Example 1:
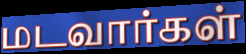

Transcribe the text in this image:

மடவார்கள்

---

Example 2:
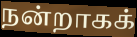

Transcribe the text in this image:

நன்றாகக்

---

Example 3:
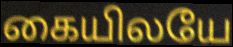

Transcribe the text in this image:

கையிலயே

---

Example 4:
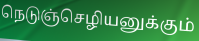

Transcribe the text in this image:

நெடுஞ்செழியனுக்கும்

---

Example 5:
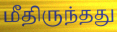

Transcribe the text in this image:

மீதிருந்தது